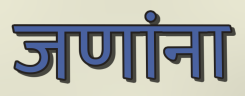
जणांना